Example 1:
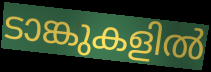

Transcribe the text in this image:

ടാങ്കുകളിൽ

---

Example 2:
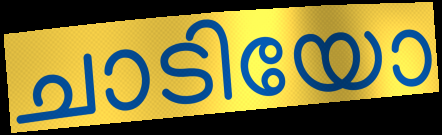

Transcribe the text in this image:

ചാടിയോ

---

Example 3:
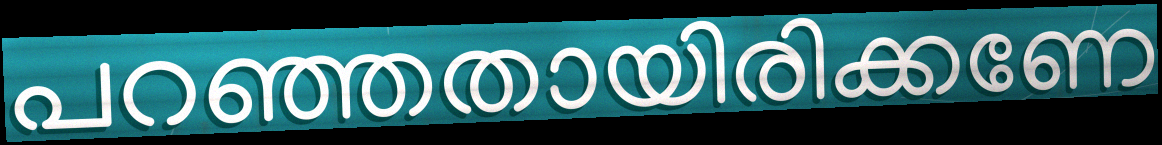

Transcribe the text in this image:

പറഞ്ഞതായിരിക്കണേ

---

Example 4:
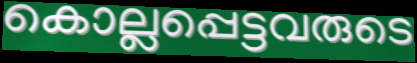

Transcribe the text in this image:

കൊല്ലപ്പെട്ടവരുടെ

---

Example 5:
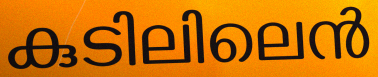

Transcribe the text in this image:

കുടിലിലെൻ